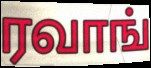
ரவாங்